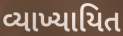
વ્યાખ્યાયિત